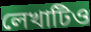
লেখাটিও